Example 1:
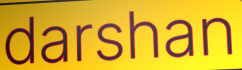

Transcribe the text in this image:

darshan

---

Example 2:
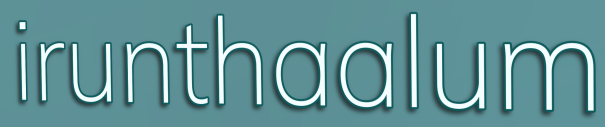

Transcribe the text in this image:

irunthaalum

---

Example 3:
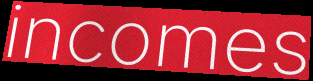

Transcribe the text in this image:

incomes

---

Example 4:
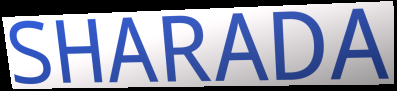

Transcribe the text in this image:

SHARADA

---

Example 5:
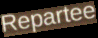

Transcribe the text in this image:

Repartee